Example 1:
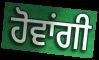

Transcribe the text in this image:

ਹੋਵਾਂਗੀ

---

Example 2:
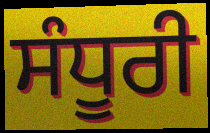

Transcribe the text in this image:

ਸੰਧੂਰੀ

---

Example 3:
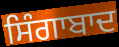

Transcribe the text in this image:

ਸਿੰਗਾਬਾਦ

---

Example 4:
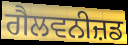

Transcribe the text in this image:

ਗੈਲਵਨੀਜ਼ਡ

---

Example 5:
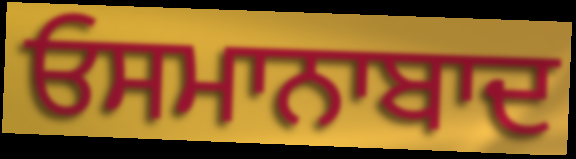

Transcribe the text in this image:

ਓਸਮਾਨਾਬਾਦ